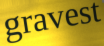
gravest